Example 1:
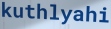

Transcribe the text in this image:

kuthlyahi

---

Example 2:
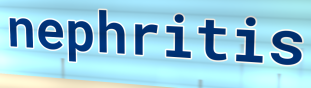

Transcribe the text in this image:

nephritis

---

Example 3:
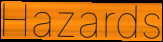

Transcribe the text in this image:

Hazards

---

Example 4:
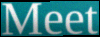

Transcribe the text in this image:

Meet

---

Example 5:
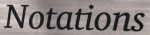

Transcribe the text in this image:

Notations